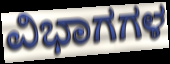
ವಿಭಾಗಗಳ